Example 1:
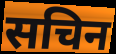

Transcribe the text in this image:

सचिन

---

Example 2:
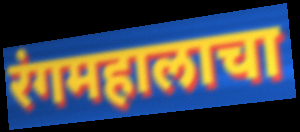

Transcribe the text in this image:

रंगमहालाचा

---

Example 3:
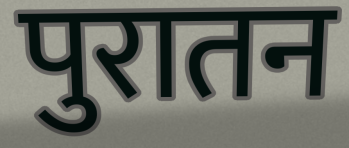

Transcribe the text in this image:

पुरातन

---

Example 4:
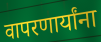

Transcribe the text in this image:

वापरणार्यांना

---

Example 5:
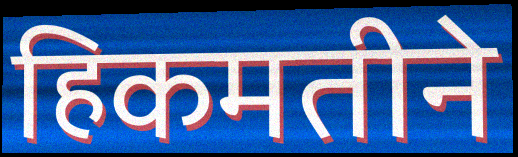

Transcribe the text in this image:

हिकमतीने